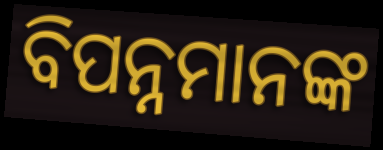
ବିପନ୍ନମାନଙ୍କ